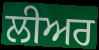
ਲੀਅਰ